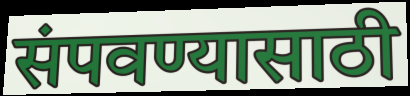
संपवण्यासाठी